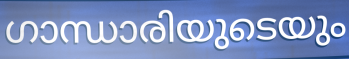
ഗാന്ധാരിയുടെയും